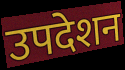
उपदेशन